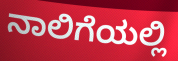
ನಾಲಿಗೆಯಲ್ಲಿ